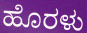
ಹೊರಳು